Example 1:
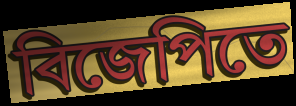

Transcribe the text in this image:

বিজেপিতে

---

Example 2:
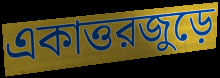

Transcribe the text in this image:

একাত্তরজুড়ে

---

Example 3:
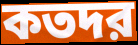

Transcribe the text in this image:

কতদর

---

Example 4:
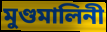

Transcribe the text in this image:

মুণ্ডমালিনী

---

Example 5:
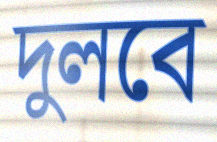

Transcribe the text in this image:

দুলবে